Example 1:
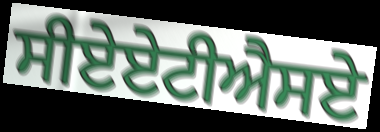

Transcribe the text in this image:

ਸੀਏਏਟੀਐਸਏ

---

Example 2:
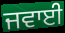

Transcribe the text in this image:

ਜਵਾਈ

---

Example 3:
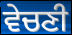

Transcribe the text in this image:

ਵੇਚਣੀ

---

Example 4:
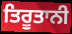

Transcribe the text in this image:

ਤਿਰੂਤਾਨੀ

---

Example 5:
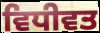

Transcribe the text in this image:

ਵਿਧੀਵਤ